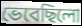
ভেবেছিলো